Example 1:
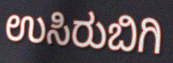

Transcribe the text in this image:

ಉಸಿರುಬಿಗಿ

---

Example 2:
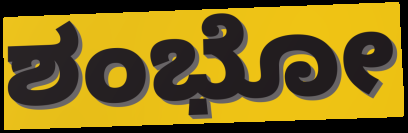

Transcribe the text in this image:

ಶಂಭೋ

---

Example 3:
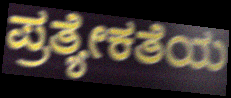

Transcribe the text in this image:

ಪ್ರತ್ಯೇಕತೆಯ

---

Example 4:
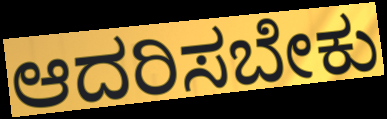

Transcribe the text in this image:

ಆದರಿಸಬೇಕು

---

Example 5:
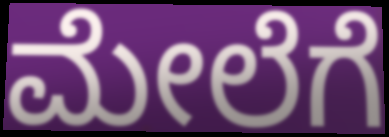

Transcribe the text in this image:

ಮೇಲೆಗೆ